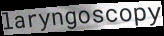
laryngoscopy